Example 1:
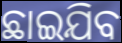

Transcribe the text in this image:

ଛାଇଯିବ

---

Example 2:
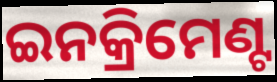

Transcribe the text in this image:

ଇନକ୍ରିମେଣ୍ଟ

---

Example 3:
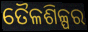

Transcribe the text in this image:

ତୈଳଶିଳ୍ପର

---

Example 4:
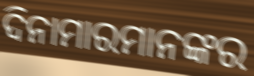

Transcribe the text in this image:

ଦିନାମାରମାନଙ୍କର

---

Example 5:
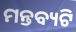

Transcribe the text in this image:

ମନ୍ତବ୍ୟଟି